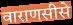
वाराणसीसे